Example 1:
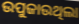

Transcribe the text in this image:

ଉପୁଜାଉଥିଲା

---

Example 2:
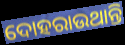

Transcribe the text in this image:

ଦୋହରାଉଥାନ୍ତି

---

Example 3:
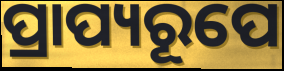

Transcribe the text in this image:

ପ୍ରାପ୍ୟରୂପେ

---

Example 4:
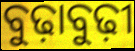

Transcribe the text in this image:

ବୁଢ଼ାବୁଢ଼ୀ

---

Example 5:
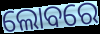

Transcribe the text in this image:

ଲୋବରେ